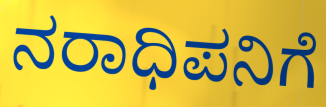
ನರಾಧಿಪನಿಗೆ